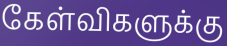
கேள்விகளுக்கு